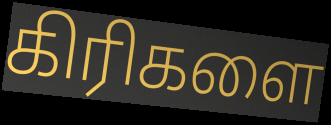
கிரிகளை